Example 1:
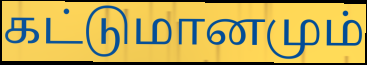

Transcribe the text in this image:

கட்டுமானமும்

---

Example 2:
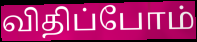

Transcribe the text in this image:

விதிப்போம்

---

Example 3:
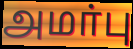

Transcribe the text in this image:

அமர்பு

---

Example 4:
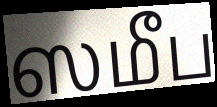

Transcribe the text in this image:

ஸமீப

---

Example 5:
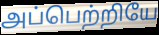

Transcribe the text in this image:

அப்பெற்றியே